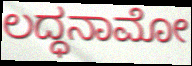
ಲದ್ಧನಾಮೋ